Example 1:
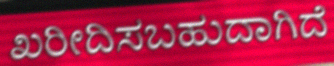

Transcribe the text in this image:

ಖರೀದಿಸಬಹುದಾಗಿದೆ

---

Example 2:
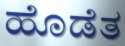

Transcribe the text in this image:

ಹೊಡೆತ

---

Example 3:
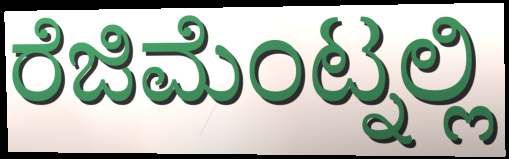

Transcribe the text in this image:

ರೆಜಿಮೆಂಟ್ನಲ್ಲಿ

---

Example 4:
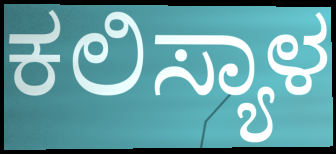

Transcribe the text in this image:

ಕಲಿಸ್ಯಾಳ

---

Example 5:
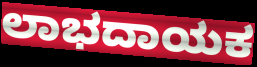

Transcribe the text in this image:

ಲಾಭದಾಯಕ